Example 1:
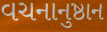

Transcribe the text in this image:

વચનાનુષ્ઠાન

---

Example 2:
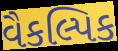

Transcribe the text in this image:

વૈકલ્પિક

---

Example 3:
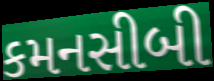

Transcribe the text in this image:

કમનસીબી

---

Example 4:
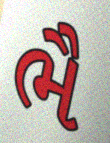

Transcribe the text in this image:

ભૈ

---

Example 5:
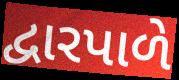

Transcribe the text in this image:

દ્વારપાળે